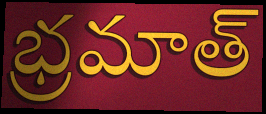
భ్రమాత్